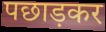
पछाड़कर